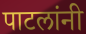
पाटलांनी